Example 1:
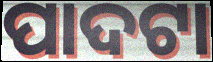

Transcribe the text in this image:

ପାଦଟା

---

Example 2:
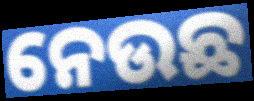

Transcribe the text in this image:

ନେଉଛ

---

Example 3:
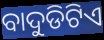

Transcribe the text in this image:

ବାଦୁଡିଟିଏ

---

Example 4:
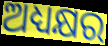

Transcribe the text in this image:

ଅଧ୍ୟକ୍ଷର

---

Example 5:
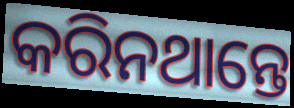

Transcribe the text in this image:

କରିନଥାନ୍ତେ